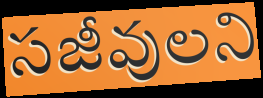
సజీవులని